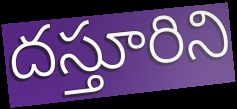
దస్తూరిని